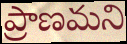
ప్రాణమని